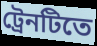
ট্রেনটিতে